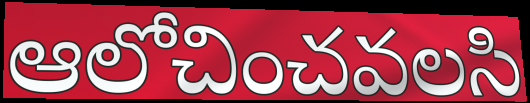
ఆలోచించవలసి